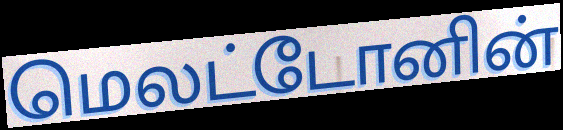
மெலட்டோனின்